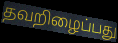
தவறிழைப்பது